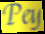
Pey